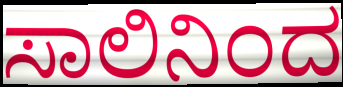
ಸಾಲಿನಿಂದ